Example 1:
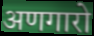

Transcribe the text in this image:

अणगारो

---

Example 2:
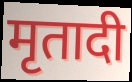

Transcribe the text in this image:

मृतादी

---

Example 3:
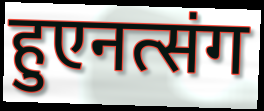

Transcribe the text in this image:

हुएनत्संग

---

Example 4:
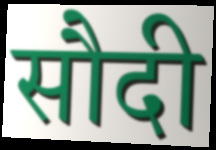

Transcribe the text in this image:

सौदी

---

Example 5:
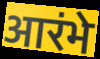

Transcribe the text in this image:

आरंभे